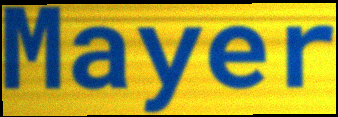
Mayer